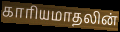
காரியமாதலின்